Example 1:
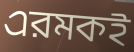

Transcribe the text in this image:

এরমকই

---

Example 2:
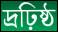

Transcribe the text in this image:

দ্রঢ়িষ্ঠ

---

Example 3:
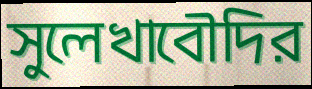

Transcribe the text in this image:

সুলেখাবৌদির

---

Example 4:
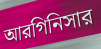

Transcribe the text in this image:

আরগিনিসার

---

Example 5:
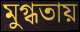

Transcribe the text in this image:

মুগ্ধতায়